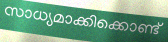
സാധ്യമാക്കിക്കൊണ്ട്